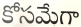
కోసమేగా